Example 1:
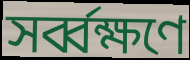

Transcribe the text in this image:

সর্ব্বক্ষণে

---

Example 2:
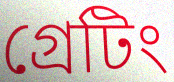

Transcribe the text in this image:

গ্রেটিং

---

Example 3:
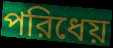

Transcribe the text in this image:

পরিধেয়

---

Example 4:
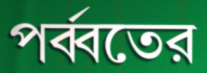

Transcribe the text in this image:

পর্ব্বতের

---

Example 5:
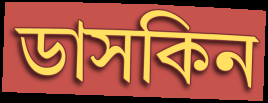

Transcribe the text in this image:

ডাসকিন